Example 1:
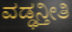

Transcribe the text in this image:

ವಡ್ಢನ್ತೀತಿ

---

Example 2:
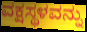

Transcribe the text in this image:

ವಕ್ಷಸ್ಥಳವನ್ನು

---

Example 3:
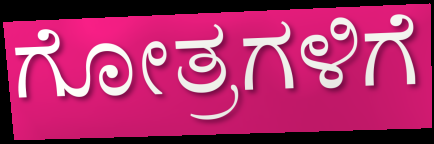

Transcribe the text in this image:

ಗೋತ್ರಗಳಿಗೆ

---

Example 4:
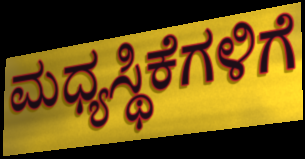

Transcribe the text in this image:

ಮಧ್ಯಸ್ಥಿಕೆಗಳಿಗೆ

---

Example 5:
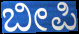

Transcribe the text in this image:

ಬೀಪಿ